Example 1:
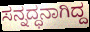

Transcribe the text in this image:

ಸನ್ನದ್ಧನಾಗಿದ್ದ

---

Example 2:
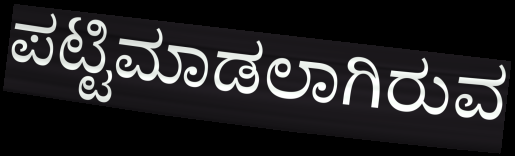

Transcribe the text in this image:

ಪಟ್ಟಿಮಾಡಲಾಗಿರುವ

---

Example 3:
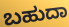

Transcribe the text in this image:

ಬಹುದಾ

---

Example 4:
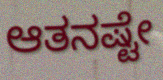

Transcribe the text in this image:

ಆತನಷ್ಟೇ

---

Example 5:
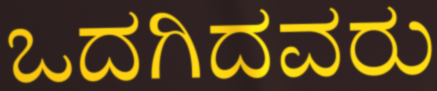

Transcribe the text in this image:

ಒದಗಿದವರು